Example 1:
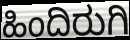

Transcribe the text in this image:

ಹಿಂದಿರುಗಿ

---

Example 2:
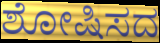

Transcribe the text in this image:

ಶೋಷಿಸದ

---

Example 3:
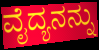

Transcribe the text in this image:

ವೈದ್ಯನನ್ನು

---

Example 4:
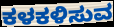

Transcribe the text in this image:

ಕಳಕಳಿಸುವ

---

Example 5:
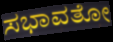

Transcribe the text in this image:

ಸಭಾವತೋ